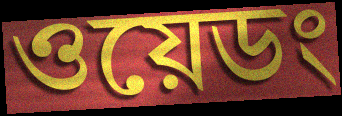
ওয়েডং